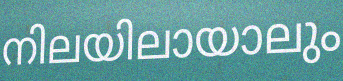
നിലയിലായാലും